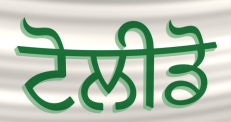
ਟੋਲੀਡੋ